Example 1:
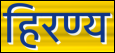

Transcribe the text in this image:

हिरण्य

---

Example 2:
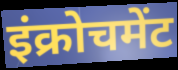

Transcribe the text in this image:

इंक्रोचमेंट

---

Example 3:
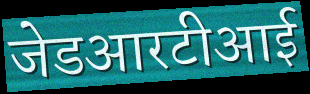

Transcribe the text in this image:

जेडआरटीआई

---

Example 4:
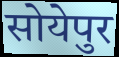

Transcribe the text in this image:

सोयेपुर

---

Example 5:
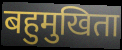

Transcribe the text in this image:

बहुमुखिता